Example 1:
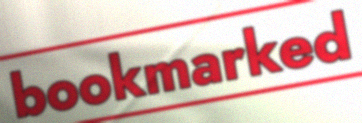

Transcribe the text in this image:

bookmarked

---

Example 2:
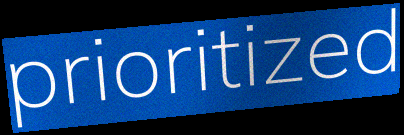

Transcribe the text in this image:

prioritized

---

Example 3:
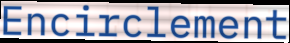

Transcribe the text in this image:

Encirclement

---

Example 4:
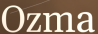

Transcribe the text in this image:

Ozma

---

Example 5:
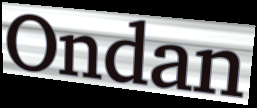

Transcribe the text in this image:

Ondan